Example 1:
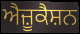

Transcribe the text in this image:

ਐਜ਼ੂਕੈਸ਼ਨ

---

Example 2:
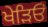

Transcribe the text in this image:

ਖੇੜਿਓਂ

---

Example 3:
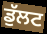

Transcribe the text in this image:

ਡੁੱਲਟ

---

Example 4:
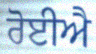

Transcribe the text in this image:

ਰੋਈਐ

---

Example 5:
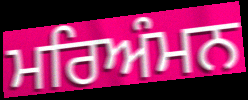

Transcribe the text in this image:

ਮਰਿਅੰਮਨ